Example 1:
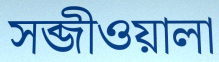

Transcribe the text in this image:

সব্জীওয়ালা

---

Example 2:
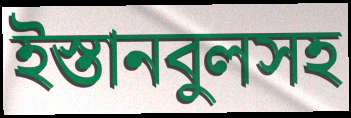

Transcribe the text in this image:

ইস্তানবুলসহ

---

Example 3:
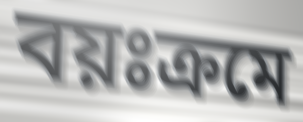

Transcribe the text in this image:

বয়ঃক্রমে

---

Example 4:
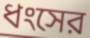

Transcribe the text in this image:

ধংসের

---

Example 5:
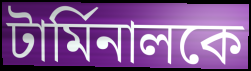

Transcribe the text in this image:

টার্মিনালকে